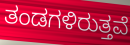
ತಂಡಗಳಿರುತ್ತವೆ